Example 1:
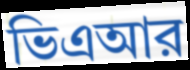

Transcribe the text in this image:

ভিএআর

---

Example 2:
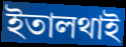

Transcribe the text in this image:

ইতালথাই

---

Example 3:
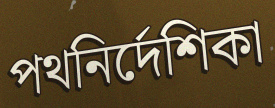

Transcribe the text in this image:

পথনির্দেশিকা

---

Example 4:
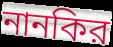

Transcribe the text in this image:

নানকির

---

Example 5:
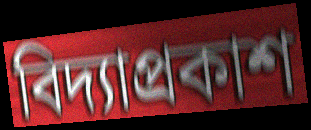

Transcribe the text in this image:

বিদ্যাপ্রকাশ